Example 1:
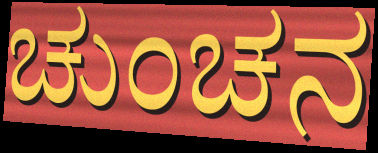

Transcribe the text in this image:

ಚುಂಚನ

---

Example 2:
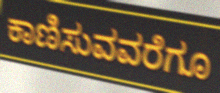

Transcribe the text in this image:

ಕಾಣಿಸುವವರೆಗೂ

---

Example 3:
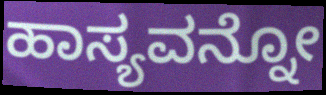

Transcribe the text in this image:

ಹಾಸ್ಯವನ್ನೋ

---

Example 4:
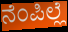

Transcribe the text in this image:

ನೆಂಪಿಲ್ಲೆ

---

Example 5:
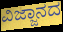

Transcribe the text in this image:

ವಿಜ್ಜಾನದ